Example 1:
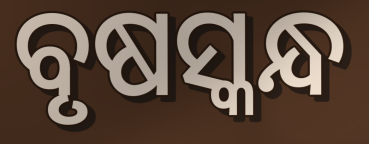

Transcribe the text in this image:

ବୃଷସ୍କନ୍ଧ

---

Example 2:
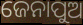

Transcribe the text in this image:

ଜେନାପୁଅ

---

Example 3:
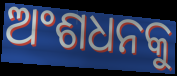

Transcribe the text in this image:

ଅଂଶଧନକୁ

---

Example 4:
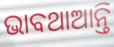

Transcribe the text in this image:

ଭାବଥାଆନ୍ତି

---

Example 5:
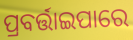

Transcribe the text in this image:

ପ୍ରବର୍ତ୍ତାଇପାରେ